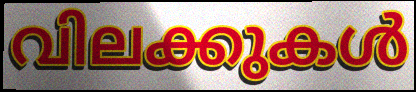
വിലക്കുകൾ